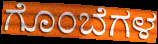
ಗೊಂಬೆಗಳ